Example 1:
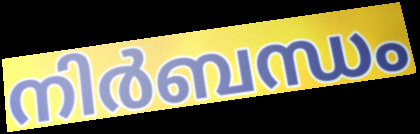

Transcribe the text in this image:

നിർബന്ധം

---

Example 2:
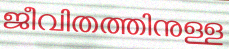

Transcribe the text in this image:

ജീവിതത്തിനുള്ള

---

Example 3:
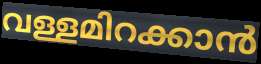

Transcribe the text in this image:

വള്ളമിറക്കാൻ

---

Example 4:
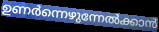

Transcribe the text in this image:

ഉണർന്നെഴുന്നേൽക്കാൻ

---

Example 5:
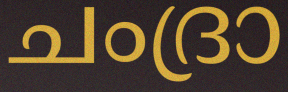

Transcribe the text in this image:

ചംദ്രാ